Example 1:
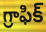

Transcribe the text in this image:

గ్రాఫిక్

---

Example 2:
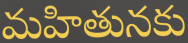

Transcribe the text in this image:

మహితునకు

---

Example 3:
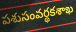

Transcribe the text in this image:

పశుసంవర్థకశాఖ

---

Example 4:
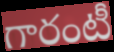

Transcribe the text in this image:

గారంటీ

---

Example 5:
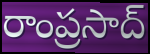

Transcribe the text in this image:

రాంప్రసాద్